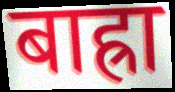
बाह्रा